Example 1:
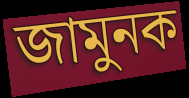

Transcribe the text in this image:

জামুনক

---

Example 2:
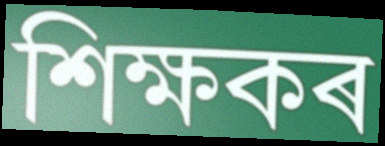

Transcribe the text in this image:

শিক্ষকৰ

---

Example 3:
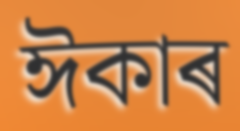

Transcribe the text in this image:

ঈকাৰ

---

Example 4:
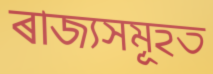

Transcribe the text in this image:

ৰাজ্যসমূহত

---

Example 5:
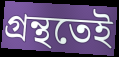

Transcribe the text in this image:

গ্ৰন্থতেই